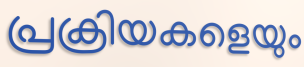
പ്രക്രിയകളെയും